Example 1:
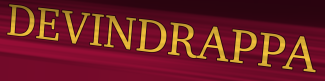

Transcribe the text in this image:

DEVINDRAPPA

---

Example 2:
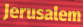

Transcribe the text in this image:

Jerusalem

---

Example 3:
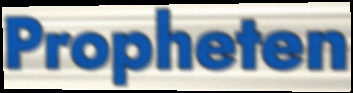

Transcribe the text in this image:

Propheten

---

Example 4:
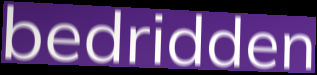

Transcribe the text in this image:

bedridden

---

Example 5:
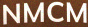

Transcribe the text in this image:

NMCM